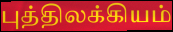
புத்திலக்கியம்